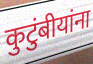
कुटुंबीयांना